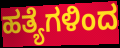
ಹತ್ಯೆಗಳಿಂದ